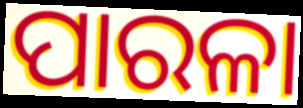
ପାରଳା